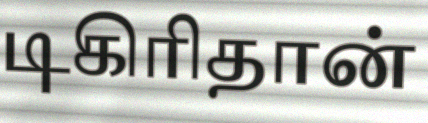
டிகிரிதான்